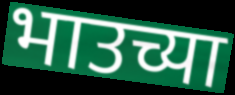
भाउच्या